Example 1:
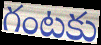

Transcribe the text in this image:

గంటకు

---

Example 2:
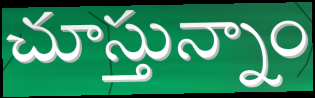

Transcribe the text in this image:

చూస్తున్నాం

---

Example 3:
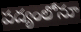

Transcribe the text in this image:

పద్యంలోనూ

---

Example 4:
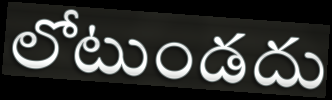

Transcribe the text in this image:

లోటుండదు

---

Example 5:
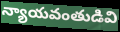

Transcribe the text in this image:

న్యాయవంతుడివి